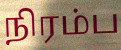
நிரம்ப